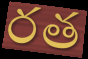
రత